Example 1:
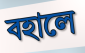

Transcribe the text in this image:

বহালে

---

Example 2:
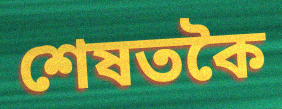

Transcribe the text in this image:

শেষতকৈ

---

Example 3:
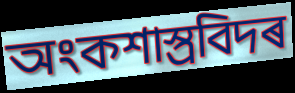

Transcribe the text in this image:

অংকশাস্ত্ৰবিদৰ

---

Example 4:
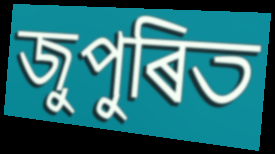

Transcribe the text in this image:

জুপুৰিত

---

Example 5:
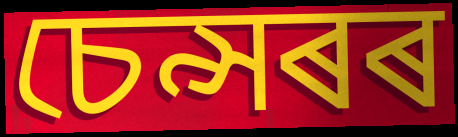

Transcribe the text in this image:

চেন্সৰৰ